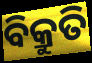
ବିକ୍ରୁତି